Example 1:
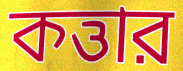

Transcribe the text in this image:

কত্তার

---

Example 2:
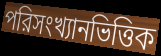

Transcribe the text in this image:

পরিসংখ্যানভিত্তিক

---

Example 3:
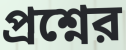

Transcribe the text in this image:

প্রশ্নের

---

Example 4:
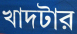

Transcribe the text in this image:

খাদটার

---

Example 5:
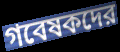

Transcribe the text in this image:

গবেষকদের